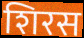
शिरस